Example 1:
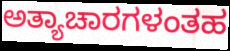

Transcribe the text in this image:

ಅತ್ಯಾಚಾರಗಳಂತಹ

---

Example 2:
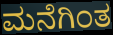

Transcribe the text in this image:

ಮನೆಗಿಂತ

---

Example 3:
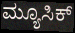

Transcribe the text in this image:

ಮ್ಯೂಸಿಕ್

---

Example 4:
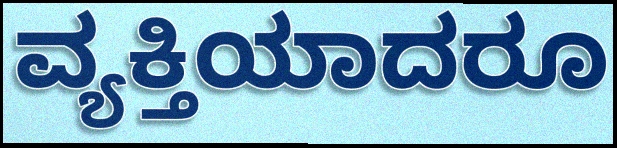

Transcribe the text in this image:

ವ್ಯಕ್ತಿಯಾದರೂ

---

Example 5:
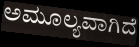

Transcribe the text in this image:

ಅಮೂಲ್ಯವಾಗಿದೆ